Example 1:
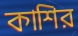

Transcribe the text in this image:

কাশির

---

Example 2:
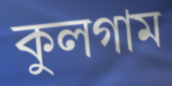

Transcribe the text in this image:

কুলগাম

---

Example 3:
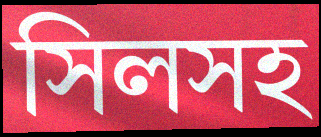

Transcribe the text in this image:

সিলসহ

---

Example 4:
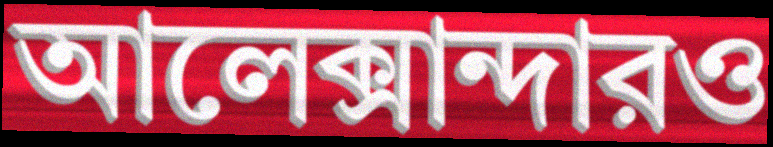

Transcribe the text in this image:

আলেক্সান্দারও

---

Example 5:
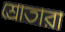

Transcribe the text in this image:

শ্রোতারা